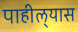
पाहील्यास